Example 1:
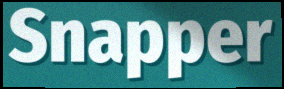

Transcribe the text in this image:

Snapper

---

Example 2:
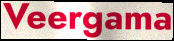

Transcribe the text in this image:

Veergama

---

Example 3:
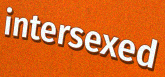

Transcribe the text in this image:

intersexed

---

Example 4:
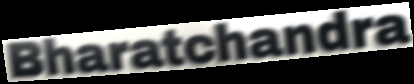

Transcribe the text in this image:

Bharatchandra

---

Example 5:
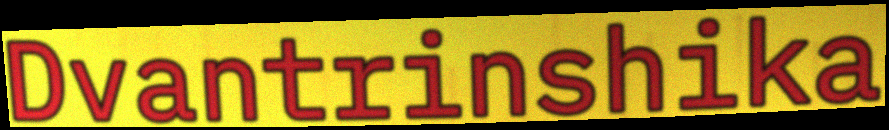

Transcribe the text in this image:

Dvantrinshika